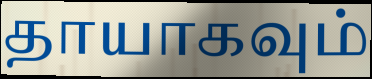
தாயாகவும்